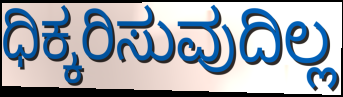
ಧಿಕ್ಕರಿಸುವುದಿಲ್ಲ